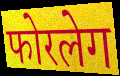
फोरलेग